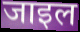
जाइल